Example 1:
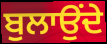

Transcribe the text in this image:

ਬੁਲਾਉਂਦੇ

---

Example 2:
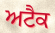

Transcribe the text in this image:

ਅਟੈਕ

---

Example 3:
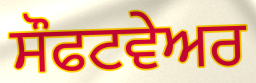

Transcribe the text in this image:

ਸੌਫਟਵੇਅਰ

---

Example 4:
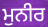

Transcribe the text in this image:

ਮੁਨੀਰ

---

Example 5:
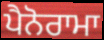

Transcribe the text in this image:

ਪੈਨੋਰਾਮਾ